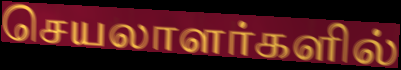
செயலாளர்களில்